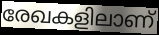
രേഖകളിലാണ്